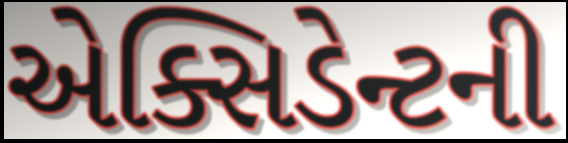
એક્સિડેન્ટની